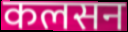
कलसन